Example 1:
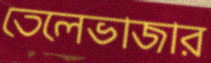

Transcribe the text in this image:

তেলেভাজার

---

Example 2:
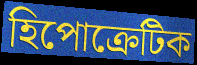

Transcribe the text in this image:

হিপোক্রেটিক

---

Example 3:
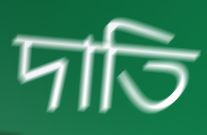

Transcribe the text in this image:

দাতি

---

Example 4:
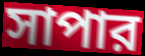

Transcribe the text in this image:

সাপার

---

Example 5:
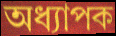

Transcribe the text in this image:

অধ্যাপক